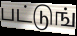
பட்டுங்